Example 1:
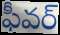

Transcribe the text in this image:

ఫీవర్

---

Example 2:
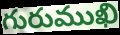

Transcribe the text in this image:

గురుముఖి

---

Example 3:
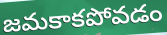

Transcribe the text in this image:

జమకాకపోవడం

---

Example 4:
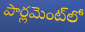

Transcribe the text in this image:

పార్లమెంట్‌లో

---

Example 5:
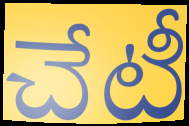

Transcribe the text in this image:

చేటీ